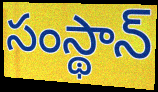
సంస్థాన్